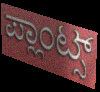
ಪ್ಲಾಂಟ್ಸ್